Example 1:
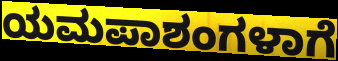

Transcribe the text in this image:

ಯಮಪಾಶಂಗಳಾಗೆ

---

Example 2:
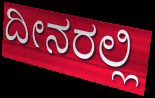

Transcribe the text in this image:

ದೀನರಲ್ಲಿ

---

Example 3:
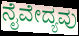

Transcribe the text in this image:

ನೈವೇದ್ಯವು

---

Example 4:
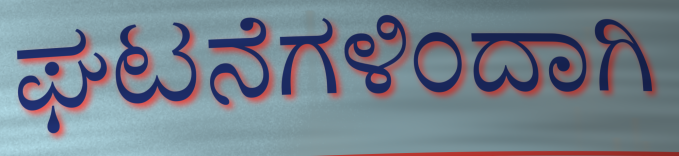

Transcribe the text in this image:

ಘಟನೆಗಳಿಂದಾಗಿ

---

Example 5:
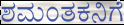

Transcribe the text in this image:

ಶಮಂತಕನಿಗೆ